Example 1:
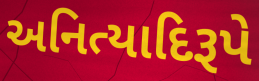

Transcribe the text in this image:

અનિત્યાદિરૂપે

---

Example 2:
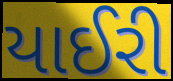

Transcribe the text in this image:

યાઈરી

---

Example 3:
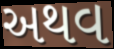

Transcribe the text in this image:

અથવ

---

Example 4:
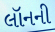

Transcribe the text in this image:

લૉનની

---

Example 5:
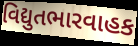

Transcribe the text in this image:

વિદ્યુતભારવાહક